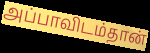
அப்பாவிடம்தான்